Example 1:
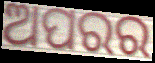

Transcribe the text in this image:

ଅପରର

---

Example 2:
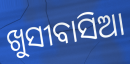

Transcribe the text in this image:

ଖୁସୀବାସିଆ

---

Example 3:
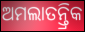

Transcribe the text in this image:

ଅମଲାତନ୍ତ୍ରିକ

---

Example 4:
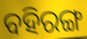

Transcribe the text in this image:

ବହିରଙ୍ଗ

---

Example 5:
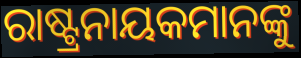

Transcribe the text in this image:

ରାଷ୍ଟ୍ରନାୟକମାନଙ୍କୁ